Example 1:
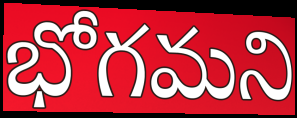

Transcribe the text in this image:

భోగమని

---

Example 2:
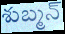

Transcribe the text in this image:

శుబ్మన్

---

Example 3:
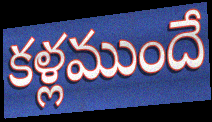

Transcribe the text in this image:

కళ్లముందే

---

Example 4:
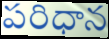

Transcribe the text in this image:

పరిధాన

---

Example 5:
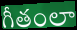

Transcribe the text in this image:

గీతంలా